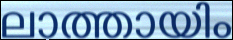
ലാത്തായിം